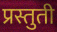
प्रस्तुती